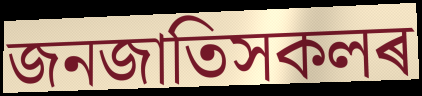
জনজাতিসকলৰ